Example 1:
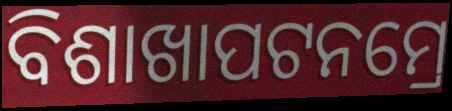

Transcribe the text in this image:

ବିଶାଖାପଟନମ୍ରେ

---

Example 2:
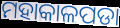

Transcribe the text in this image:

ମହାକାଳପଡା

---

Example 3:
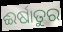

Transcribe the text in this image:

ଈର୍ଷାତୁର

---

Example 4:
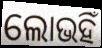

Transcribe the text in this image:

ଲୋଭହିଁ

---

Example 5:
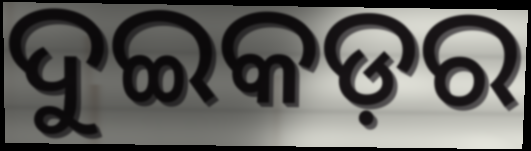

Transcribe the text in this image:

ଦୁଇକଡ଼ର